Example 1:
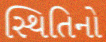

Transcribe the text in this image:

સ્થિતિનો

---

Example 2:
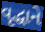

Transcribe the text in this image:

વૃદ્ધાને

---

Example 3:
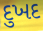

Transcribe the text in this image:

દુખદ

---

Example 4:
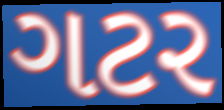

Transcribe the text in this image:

ગટર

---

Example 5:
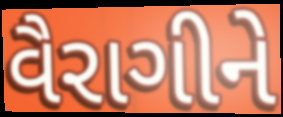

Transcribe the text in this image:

વૈરાગીને